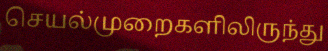
செயல்முறைகளிலிருந்து